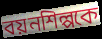
বয়নশিল্পকে